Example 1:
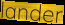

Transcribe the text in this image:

lander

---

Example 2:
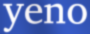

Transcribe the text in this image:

yeno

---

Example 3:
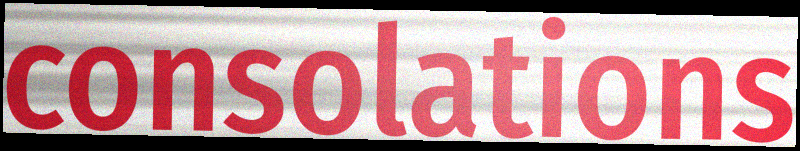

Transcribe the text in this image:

consolations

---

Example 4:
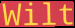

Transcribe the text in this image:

Wilt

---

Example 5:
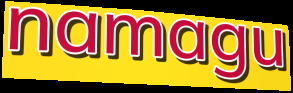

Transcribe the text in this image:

namagu